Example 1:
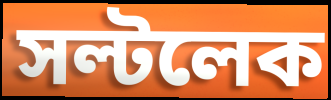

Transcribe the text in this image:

সল্টলেক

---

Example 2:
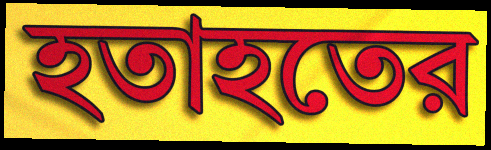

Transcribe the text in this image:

হতাহতের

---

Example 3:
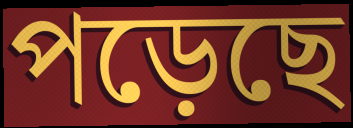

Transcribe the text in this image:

পড়েছে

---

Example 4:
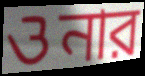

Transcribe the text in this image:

ওনার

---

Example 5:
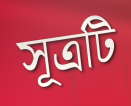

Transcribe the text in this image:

সূত্রটি